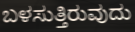
ಬಳಸುತ್ತಿರುವುದು